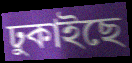
ঢুকাইছে